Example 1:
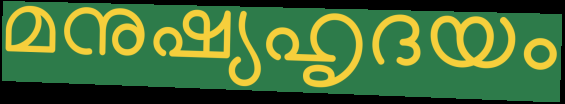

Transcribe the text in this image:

മനുഷ്യഹൃദയം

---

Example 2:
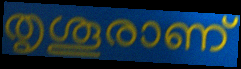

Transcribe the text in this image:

തൃശൂരാണ്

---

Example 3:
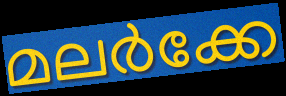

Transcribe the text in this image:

മലർക്കേ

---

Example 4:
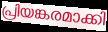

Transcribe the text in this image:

പ്രിയങ്കരമാക്കി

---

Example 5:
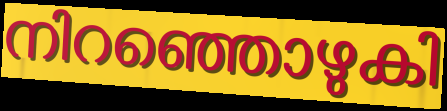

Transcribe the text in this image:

നിറഞ്ഞൊഴുകി